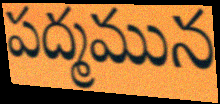
పద్మమున